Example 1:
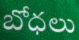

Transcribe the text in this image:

బోధలు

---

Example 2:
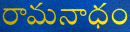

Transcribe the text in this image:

రామనాధం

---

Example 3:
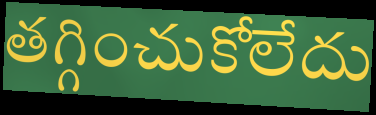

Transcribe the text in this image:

తగ్గించుకోలేదు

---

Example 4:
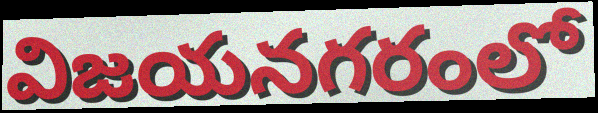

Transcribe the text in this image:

విజయనగరంలో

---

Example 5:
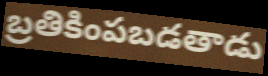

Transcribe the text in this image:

బ్రతికింపబడతాడు